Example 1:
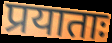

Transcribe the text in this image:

प्रयाताः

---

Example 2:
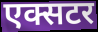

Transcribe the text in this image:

एक्सटर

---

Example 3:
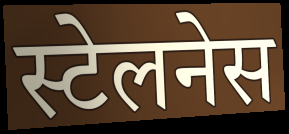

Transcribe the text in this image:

स्टेलनेस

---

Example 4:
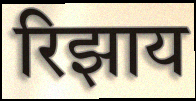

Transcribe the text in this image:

रिझाय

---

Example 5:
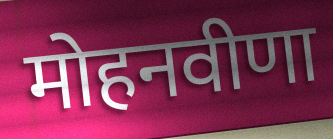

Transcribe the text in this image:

मोहनवीणा